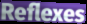
Reflexes